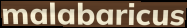
malabaricus